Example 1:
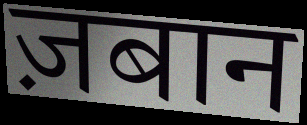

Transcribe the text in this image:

ज़बान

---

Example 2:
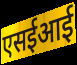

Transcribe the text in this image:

एसईआई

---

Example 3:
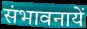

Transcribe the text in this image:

संभावनायें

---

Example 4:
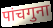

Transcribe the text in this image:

पांचगुना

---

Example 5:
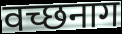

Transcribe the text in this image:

वच्छनाग